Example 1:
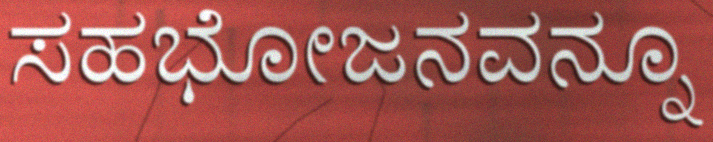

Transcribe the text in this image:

ಸಹಭೋಜನವನ್ನೂ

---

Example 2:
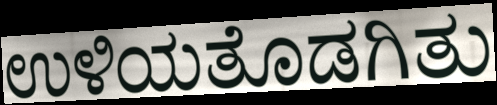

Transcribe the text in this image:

ಉಳಿಯತೊಡಗಿತು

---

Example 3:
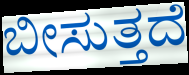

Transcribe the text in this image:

ಬೀಸುತ್ತದೆ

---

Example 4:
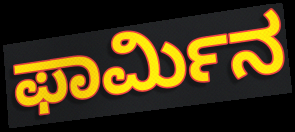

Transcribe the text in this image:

ಫಾರ್ಮಿನ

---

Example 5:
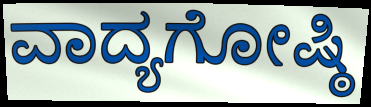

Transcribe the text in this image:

ವಾದ್ಯಗೋಷ್ಠಿ